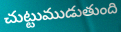
చుట్టుముడుతుంది